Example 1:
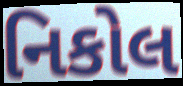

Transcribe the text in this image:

નિકોલ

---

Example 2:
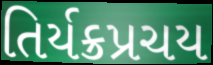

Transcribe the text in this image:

તિર્યક્રપ્રચય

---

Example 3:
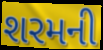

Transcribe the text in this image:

શરમની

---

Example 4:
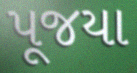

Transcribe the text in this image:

પૂજયા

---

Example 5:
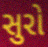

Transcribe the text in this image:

સુરો